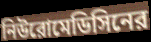
নিউরোমেডিসিনের